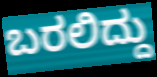
ಬರಲಿದ್ದು